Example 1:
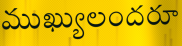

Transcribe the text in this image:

ముఖ్యులందరూ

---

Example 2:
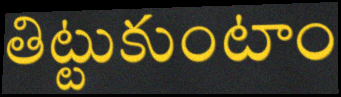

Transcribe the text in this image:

తిట్టుకుంటాం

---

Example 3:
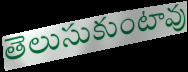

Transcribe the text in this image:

తెలుసుకుంటావు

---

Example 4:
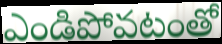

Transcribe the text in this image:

ఎండిపోవటంతో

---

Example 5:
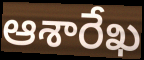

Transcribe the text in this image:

ఆశారేఖ